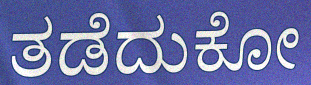
ತಡೆದುಕೋ